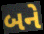
બને